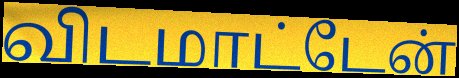
விடமாட்டேன்